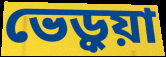
ভেড়ুয়া